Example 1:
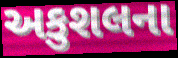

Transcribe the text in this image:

અકુશલના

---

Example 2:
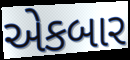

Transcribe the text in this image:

એકબાર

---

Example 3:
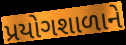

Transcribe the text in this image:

પ્રયોગશાળાને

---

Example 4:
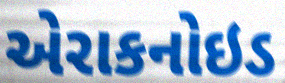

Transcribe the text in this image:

એરાકનોઇડ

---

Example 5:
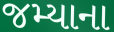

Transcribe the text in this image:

જમ્યાના